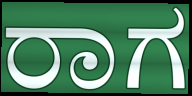
ರಾಗ